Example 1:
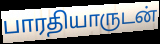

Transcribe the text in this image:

பாரதியாருடன்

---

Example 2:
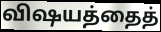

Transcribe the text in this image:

விஷயத்தைத்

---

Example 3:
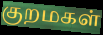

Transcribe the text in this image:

குறமகள்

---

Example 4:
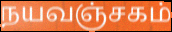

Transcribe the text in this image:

நயவஞ்சகம்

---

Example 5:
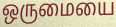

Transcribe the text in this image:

ஒருமையை